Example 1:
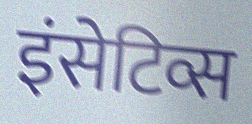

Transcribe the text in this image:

इंसेटिव्स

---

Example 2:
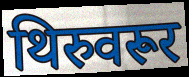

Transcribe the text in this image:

थिरुवरूर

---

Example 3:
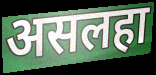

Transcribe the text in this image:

असलहा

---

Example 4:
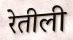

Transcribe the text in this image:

रेतीली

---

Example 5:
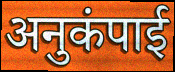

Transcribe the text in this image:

अनुकंपाई